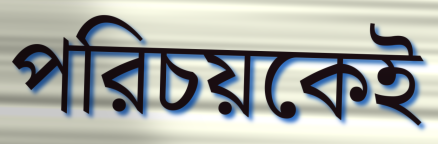
পরিচয়কেই